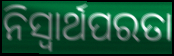
ନିସ୍ଵାର୍ଥପରତା